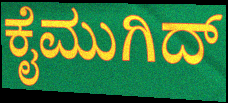
ಕೈಮುಗಿದ್